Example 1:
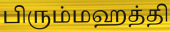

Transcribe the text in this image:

பிரும்மஹத்தி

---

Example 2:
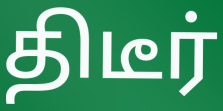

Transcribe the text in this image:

திடீர்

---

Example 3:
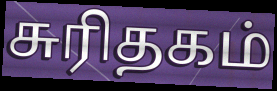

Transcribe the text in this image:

சுரிதகம்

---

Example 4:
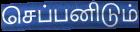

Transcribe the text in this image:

செப்பனிடும்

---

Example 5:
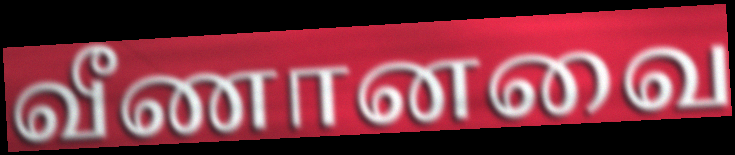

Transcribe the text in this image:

வீணானவை